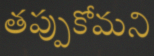
తప్పుకోమని